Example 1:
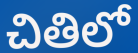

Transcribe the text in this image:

చితిలో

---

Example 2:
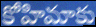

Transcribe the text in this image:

కోహిమాకు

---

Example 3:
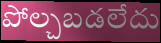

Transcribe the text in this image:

పోల్చబడలేదు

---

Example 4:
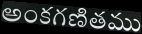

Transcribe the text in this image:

అంకగణితము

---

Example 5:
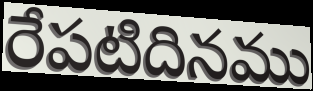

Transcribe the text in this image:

రేపటిదినము